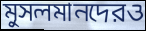
মুসলমানদেরও